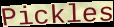
Pickles